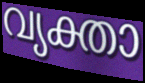
വ്യക്താ